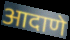
आदाणे